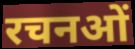
रचनओं